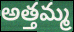
అత్తమ్మ